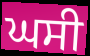
ਘਸੀ